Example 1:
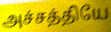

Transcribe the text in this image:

அச்சத்தியே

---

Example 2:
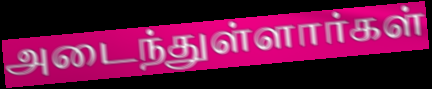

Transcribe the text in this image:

அடைந்துள்ளார்கள்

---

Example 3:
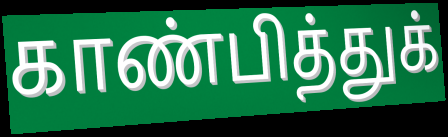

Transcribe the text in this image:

காண்பித்துக்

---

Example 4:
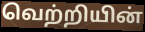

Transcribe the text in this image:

வெற்றியின்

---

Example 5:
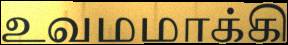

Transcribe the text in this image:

உவமமாக்கி